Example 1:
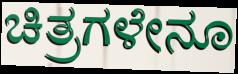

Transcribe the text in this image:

ಚಿತ್ರಗಳೇನೂ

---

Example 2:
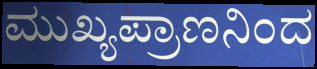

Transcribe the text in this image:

ಮುಖ್ಯಪ್ರಾಣನಿಂದ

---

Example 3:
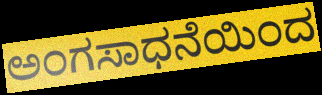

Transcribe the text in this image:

ಅಂಗಸಾಧನೆಯಿಂದ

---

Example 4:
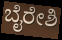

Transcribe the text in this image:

ಬೈರೇಶಿ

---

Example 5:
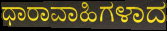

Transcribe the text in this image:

ಧಾರಾವಾಹಿಗಳಾದ